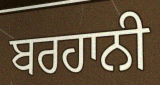
ਬਰਹਾਨੀ